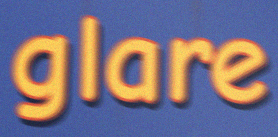
glare